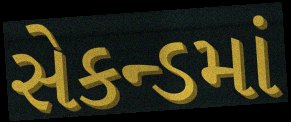
સેકન્ડમાં